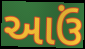
આઉં